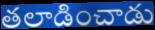
తలాడించాడు